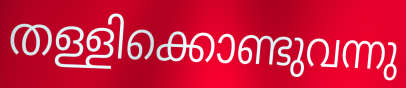
തള്ളിക്കൊണ്ടുവന്നു